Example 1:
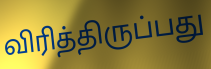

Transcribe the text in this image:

விரித்திருப்பது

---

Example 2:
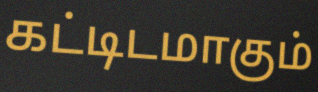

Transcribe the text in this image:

கட்டிடமாகும்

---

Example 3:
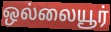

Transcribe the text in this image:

ஒல்லையூர்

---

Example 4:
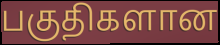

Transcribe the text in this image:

பகுதிகளான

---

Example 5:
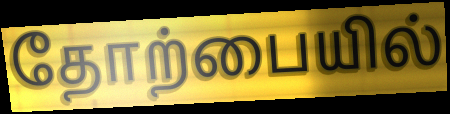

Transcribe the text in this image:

தோற்பையில்